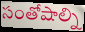
సంతోషాల్ని